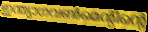
ഇന്ത്യാഗവൺമെന്റിന്റെ